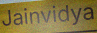
Jainvidya